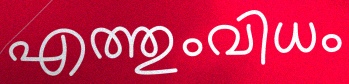
എത്തുംവിധം